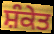
ਸ਼ੰਕੇਤ